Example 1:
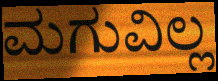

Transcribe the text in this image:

ಮಗುವಿಲ್ಲ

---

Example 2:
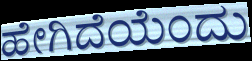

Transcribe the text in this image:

ಹೇಗಿದೆಯೆಂದು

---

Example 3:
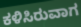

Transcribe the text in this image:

ಕಳಿಸಿರುವಾಗ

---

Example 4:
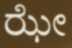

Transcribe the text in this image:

ಝೇ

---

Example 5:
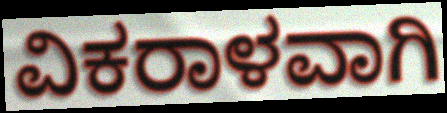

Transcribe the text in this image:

ವಿಕರಾಳವಾಗಿ